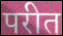
परीत